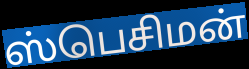
ஸ்பெசிமன்